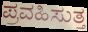
ಪ್ರವಹಿಸುತ್ತ